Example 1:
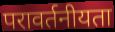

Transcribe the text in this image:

परावर्तनीयता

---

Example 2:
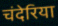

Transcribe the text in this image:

चंदेरिया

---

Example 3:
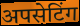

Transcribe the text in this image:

अपसेटिंग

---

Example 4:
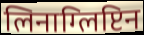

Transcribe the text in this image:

लिनाग्लिप्टिन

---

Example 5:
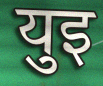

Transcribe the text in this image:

युइ